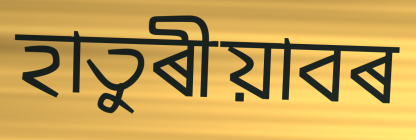
হাতুৰীয়াবৰ